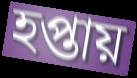
হপ্তায়